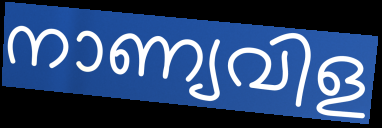
നാണ്യവിള